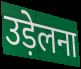
उड़ेलना